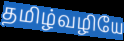
தமிழ்வழியே